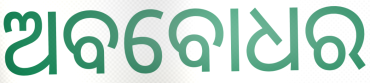
ଅବବୋଧର